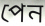
পেন